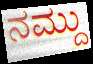
ನಮ್ದು